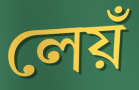
লেয়ঁ